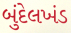
બુંદેલખંડ